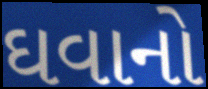
ઘવાનો